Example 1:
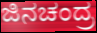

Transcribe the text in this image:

ಜಿನಚಂದ್ರ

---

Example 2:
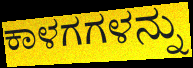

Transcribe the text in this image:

ಕಾಳಗಗಳನ್ನು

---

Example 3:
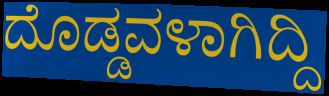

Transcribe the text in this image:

ದೊಡ್ಡವಳಾಗಿದ್ದಿ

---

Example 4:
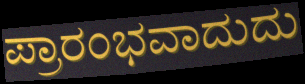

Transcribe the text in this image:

ಪ್ರಾರಂಭವಾದುದು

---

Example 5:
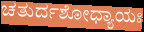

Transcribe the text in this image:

ಚತುರ್ದಶೋಧ್ಯಾಯಃ